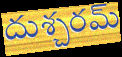
దుశ్చరమ్